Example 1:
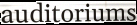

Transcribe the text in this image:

auditoriums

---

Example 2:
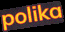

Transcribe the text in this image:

polika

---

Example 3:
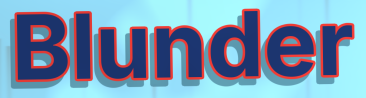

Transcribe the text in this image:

Blunder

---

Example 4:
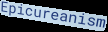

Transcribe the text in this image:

Epicureanism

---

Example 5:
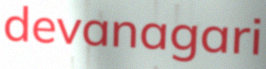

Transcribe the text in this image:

devanagari